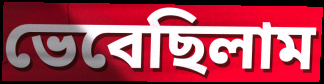
ভেবেছিলাম